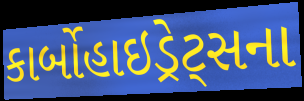
કાર્બોહાઇડ્રેટ્સના